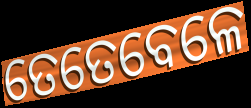
ତେତେବେଳେ